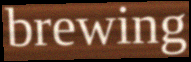
brewing